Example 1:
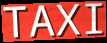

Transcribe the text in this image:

TAXI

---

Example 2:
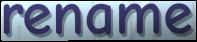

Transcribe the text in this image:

rename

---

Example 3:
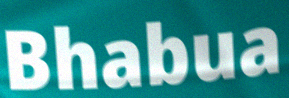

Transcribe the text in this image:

Bhabua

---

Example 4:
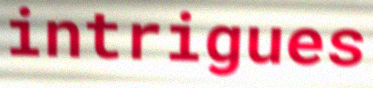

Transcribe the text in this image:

intrigues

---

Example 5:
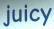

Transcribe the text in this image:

juicy